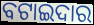
ବଟାଇଦାର